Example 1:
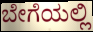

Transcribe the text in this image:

ಬೇಗೆಯಲ್ಲಿ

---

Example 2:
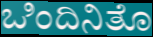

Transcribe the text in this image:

ಒಿಂದಿನಿತೊ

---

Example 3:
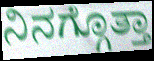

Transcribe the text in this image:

ನಿನಗ್ಗೊತ್ತಾ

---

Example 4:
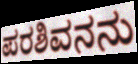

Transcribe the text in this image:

ಪರಶಿವನನು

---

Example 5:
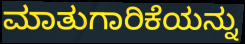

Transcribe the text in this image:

ಮಾತುಗಾರಿಕೆಯನ್ನು